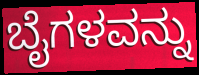
ಬೈಗಳವನ್ನು